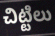
చిట్టిలు